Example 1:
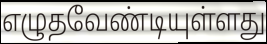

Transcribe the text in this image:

எழுதவேண்டியுள்ளது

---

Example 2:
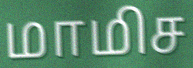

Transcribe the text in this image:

மாமிச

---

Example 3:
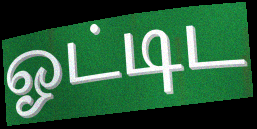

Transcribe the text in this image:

ஓட்டிட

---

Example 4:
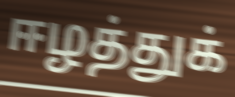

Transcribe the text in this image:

ஈழத்துக்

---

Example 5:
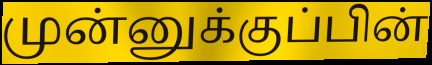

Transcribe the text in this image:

முன்னுக்குப்பின்